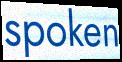
spoken